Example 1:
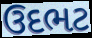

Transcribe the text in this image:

ઉદભટ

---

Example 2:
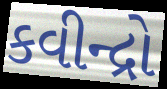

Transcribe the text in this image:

કવીન્દ્રો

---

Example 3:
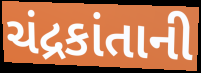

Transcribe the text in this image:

ચંદ્રકાંતાની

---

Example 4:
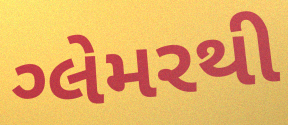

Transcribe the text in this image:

ગ્લેમરથી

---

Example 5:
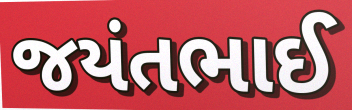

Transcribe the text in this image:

જયંતભાઈ